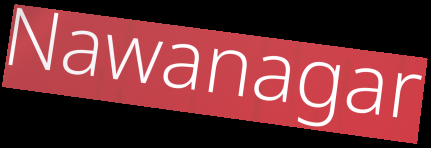
Nawanagar